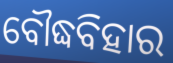
ବୌଦ୍ଧବିହାର